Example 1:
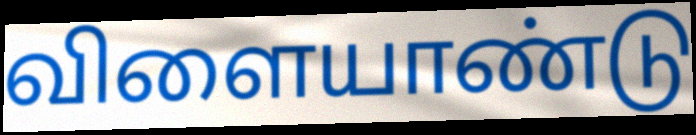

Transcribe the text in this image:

விளையாண்டு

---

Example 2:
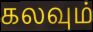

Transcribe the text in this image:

கலவும்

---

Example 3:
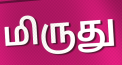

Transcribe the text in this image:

மிருது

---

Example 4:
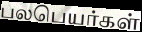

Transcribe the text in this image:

பலபெயர்கள்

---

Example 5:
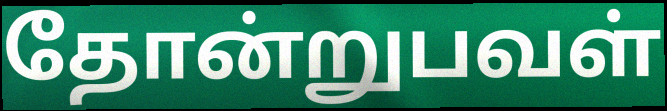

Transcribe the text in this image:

தோன்றுபவள்